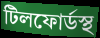
টিলফোর্ডস্থ